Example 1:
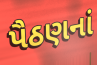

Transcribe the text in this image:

પૈઠણનાં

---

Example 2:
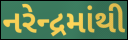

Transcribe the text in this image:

નરેન્દ્રમાંથી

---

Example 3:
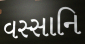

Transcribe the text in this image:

વસ્સાનિ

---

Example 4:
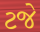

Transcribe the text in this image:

ટજે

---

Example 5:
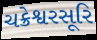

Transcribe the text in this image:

ચક્રેશ્વરસૂરિ